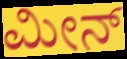
ಮೀನ್